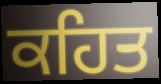
ਕਹਿਤ